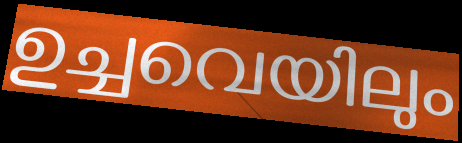
ഉച്ചവെയിലും